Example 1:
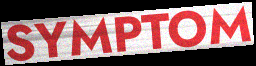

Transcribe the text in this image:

SYMPTOM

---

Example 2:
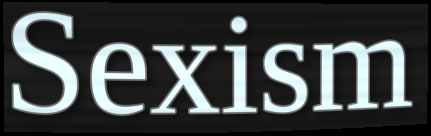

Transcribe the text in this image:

Sexism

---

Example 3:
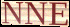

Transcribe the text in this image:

NNE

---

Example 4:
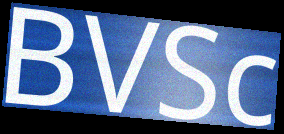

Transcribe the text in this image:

BVSc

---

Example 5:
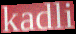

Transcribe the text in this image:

kadli